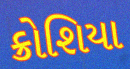
ક્રોશિયા